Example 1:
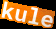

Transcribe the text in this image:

kule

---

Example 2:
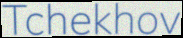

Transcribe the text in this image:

Tchekhov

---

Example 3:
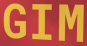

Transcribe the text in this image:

GIM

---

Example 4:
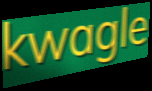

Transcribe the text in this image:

kwagle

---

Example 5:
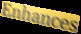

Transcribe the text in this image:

Enhances